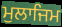
ਮੁਲਾਜਿਮ